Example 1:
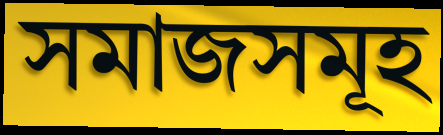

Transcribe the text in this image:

সমাজসমূহ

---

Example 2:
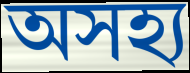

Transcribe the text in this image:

অসহ্য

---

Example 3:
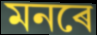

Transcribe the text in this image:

মনৰে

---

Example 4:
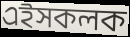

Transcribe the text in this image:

এইসকলক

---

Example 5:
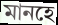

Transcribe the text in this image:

মানহে